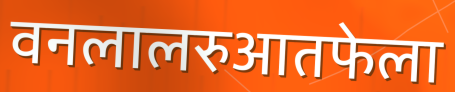
वनलालरुआतफेला